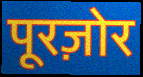
पूरज़ोर